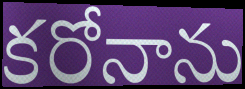
కరోనాను